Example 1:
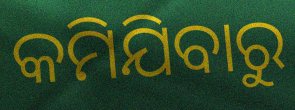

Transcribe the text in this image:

କମିଯିବାରୁ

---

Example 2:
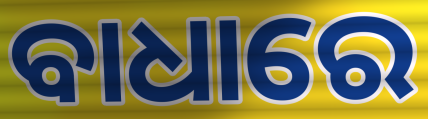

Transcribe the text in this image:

ବାଧାରେ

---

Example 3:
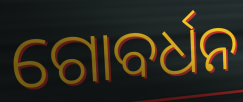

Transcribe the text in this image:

ଗୋବର୍ଧନ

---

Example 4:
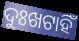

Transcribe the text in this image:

ଦୁଃଖଟାହିଁ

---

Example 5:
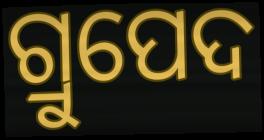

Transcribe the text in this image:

ଗ୍ରୁପେଦ